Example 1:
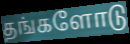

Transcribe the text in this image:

தங்களோடு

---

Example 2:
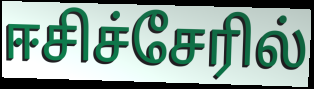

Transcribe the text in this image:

ஈசிச்சேரில்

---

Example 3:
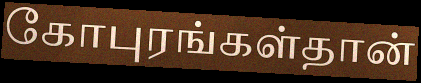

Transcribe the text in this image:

கோபுரங்கள்தான்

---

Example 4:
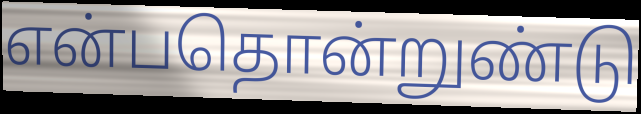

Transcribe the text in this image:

என்பதொன்றுண்டு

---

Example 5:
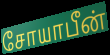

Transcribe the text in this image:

சோயாபீன்